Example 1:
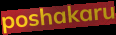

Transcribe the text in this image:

poshakaru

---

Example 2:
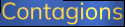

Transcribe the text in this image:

Contagions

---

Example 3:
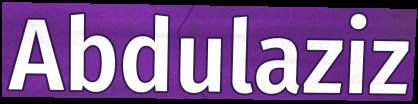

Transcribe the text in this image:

Abdulaziz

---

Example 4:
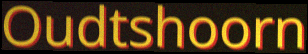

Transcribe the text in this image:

Oudtshoorn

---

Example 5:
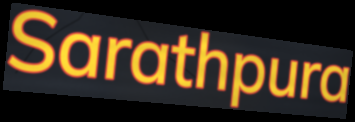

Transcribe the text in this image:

Sarathpura